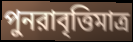
পুনরাবৃত্তিমাত্র